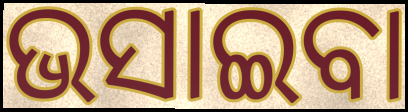
ଭସାଇବା